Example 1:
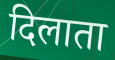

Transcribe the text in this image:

दिलाता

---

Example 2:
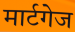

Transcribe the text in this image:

मार्टगेज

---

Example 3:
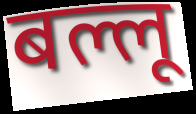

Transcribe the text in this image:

बल्लू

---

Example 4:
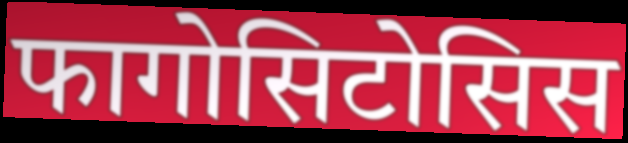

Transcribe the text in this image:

फागोसिटोसिस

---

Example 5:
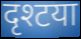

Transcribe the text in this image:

दृश्टया